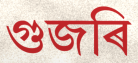
গুজৰি